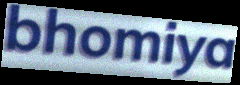
bhomiya